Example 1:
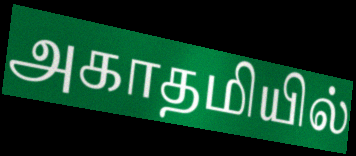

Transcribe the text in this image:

அகாதமியில்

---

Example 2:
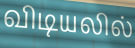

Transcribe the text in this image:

விடியலில்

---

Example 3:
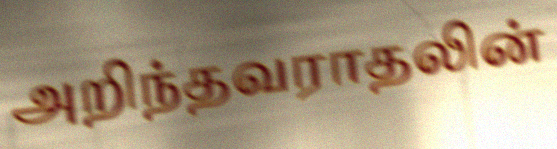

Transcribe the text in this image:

அறிந்தவராதலின்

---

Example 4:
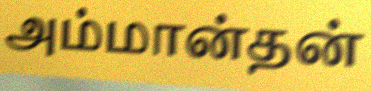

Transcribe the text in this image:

அம்மான்தன்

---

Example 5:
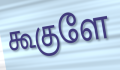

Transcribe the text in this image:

கூகுளே